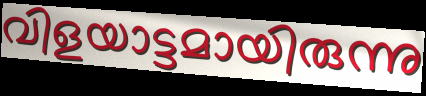
വിളയാട്ടമായിരുന്നു